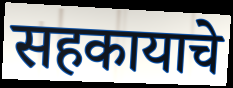
सहकायाचे